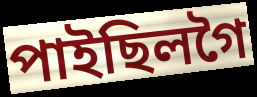
পাইছিলগৈ